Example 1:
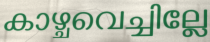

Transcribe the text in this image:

കാഴ്ചവെച്ചില്ലേ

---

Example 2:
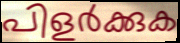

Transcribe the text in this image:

പിളർക്കുക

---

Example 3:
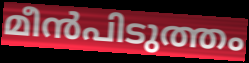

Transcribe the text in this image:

മീൻപിടുത്തം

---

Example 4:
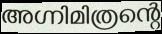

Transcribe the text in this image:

അഗ്നിമിത്രന്റെ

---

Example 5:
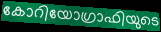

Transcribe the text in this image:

കോറിയോഗ്രാഫിയുടെ